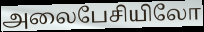
அலைபேசியிலோ